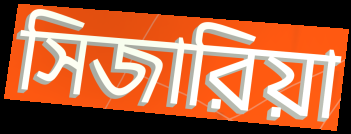
সিজারিয়া